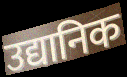
उद्यानिक